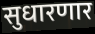
सुधारणार